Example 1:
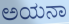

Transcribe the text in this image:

ಅಯನಾ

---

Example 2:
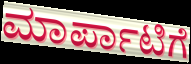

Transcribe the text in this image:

ಮಾರ್ಪಾಟಿಗೆ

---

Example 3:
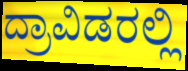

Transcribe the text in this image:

ದ್ರಾವಿಡರಲ್ಲಿ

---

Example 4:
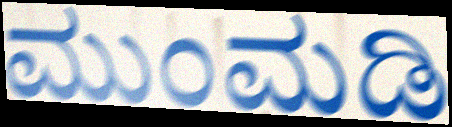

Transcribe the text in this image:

ಮುಂಮಡಿ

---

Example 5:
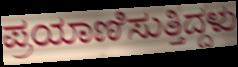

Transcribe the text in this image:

ಪ್ರಯಾಣಿಸುತ್ತಿದ್ದಳು